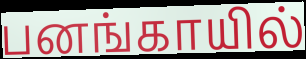
பனங்காயில்